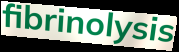
fibrinolysis